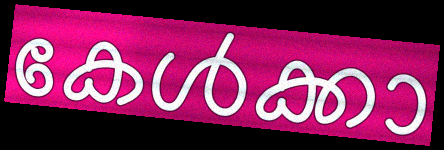
കേൾക്കാ